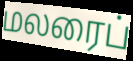
மலரைப்